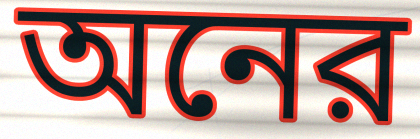
অনের